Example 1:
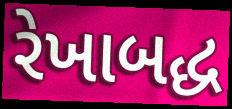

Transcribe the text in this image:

રેખાબદ્ધ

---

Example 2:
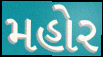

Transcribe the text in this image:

મહોર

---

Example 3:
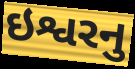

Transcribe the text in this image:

ઇશ્વરનુ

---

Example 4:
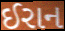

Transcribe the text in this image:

ઈરાન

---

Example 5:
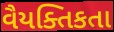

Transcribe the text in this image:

વૈયક્તિકતા